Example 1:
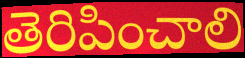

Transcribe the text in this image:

తెరిపించాలి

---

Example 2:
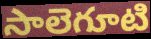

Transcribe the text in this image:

సాలెగూటి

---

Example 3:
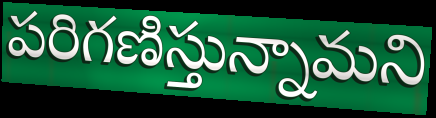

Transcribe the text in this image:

పరిగణిస్తున్నామని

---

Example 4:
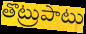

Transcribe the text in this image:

తొట్రుపాటు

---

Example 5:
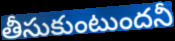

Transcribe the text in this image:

తీసుకుంటుందనీ